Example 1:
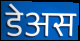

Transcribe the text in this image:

डेअस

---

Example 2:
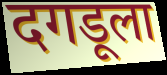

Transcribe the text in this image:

दगडूला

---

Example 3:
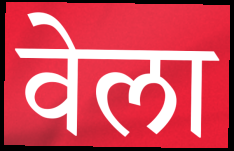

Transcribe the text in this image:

वेला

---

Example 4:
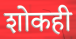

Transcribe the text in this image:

शोकही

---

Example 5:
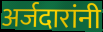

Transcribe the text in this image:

अर्जदारांनी